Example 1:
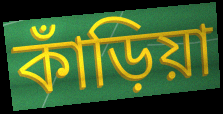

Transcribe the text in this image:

কাঁড়িয়া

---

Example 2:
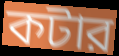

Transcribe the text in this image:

কটার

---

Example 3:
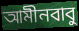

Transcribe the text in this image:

আমীনবাবু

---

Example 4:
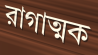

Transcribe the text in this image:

রাগাত্মক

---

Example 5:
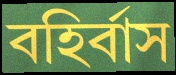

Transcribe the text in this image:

বহির্বাস